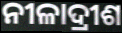
ନୀଳାଦ୍ରୀଶ